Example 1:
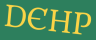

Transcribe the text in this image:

DEHP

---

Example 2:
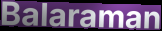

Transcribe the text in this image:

Balaraman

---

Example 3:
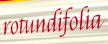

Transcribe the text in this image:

rotundifolia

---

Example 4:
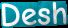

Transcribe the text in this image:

Desh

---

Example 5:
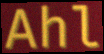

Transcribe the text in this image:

Ahl